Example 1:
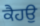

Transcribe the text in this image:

ਕੈਹਉ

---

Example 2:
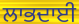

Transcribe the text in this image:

ਲਾਭਦਾਈ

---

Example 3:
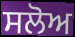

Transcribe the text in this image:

ਸਲੋਅ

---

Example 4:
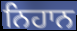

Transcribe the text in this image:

ਨਿਹਾਨ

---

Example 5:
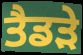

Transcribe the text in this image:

ਤੈਡੜੇ